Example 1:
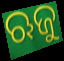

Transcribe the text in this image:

ଋଜୁ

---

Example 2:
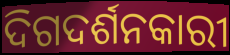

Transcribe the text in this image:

ଦିଗଦର୍ଶନକାରୀ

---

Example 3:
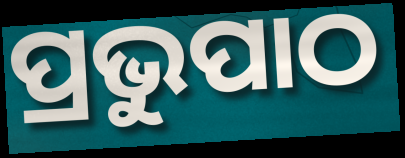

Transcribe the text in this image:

ପ୍ରଭୁପାଠ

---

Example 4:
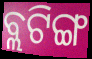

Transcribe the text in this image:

ବ୍ଲଟିଙ୍ଗ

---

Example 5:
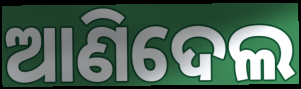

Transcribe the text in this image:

ଆଣିଦେଲ